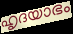
ഹൃദയാഭം